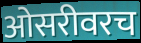
ओसरीवरच